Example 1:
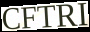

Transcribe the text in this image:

CFTRI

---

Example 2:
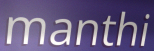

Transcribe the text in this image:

manthi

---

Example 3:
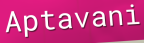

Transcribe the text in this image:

Aptavani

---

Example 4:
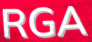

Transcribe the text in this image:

RGA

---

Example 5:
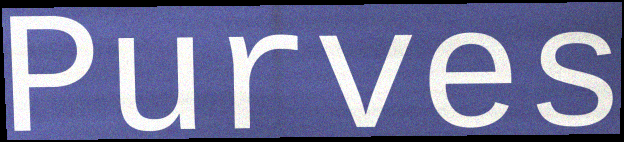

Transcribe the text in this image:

Purves